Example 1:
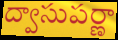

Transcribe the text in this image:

ద్వాసుపర్ణా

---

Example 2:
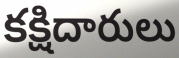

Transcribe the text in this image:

కక్షిదారులు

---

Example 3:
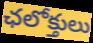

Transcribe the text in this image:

ఛలోక్తులు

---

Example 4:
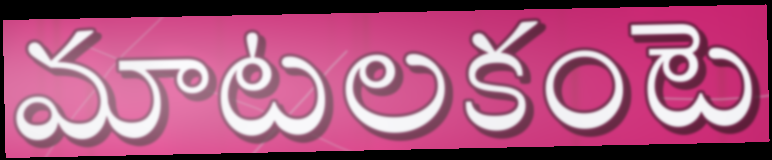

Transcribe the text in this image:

మాటలకంటె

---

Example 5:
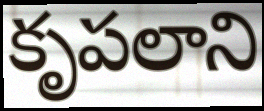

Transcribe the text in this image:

కృపలాని